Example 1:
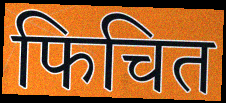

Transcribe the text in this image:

फिचित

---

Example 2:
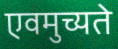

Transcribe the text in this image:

एवमुच्यते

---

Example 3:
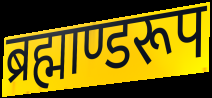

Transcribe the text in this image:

ब्रह्माण्डरूप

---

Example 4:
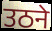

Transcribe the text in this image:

उठने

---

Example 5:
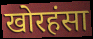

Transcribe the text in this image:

खोरहंसा